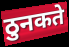
ठुनकते